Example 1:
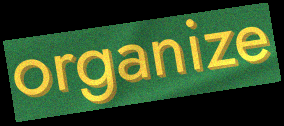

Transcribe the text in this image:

organize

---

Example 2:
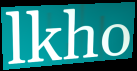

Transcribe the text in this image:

lkho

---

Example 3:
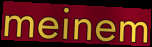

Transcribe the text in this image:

meinem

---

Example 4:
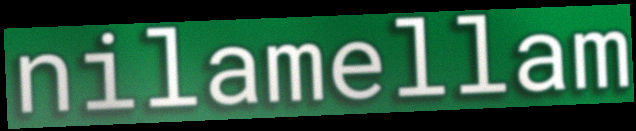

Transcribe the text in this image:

nilamellam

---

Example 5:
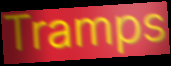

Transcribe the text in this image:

Tramps